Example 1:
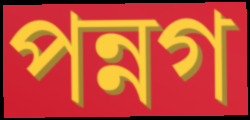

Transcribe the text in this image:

পন্নগ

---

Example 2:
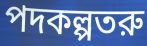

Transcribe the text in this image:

পদকল্পতরু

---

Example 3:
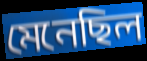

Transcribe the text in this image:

মেনেছিল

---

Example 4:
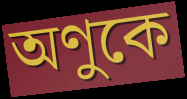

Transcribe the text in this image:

অণুকে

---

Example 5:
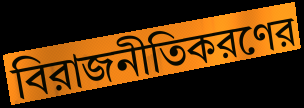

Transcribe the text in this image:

বিরাজনীতিকরণের